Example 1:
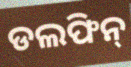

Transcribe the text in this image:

ଡଲଫିନ୍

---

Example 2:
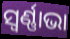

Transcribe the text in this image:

ସ୍ୱର୍ଣ୍ଣାଭା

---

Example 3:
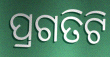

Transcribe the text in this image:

ପ୍ରଗତିଟି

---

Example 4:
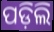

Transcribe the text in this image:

ପଡ଼ିଲି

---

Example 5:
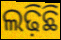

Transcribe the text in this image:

ଲଢ଼ିଛି